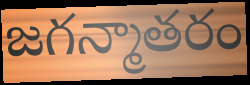
జగన్మాతరం